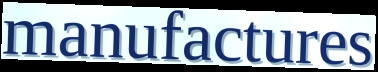
manufactures